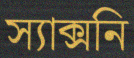
স্যাক্সনি